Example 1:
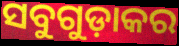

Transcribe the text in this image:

ସବୁଗୁଡ଼ାକର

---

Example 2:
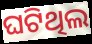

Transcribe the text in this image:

ଘଟିଥିଲ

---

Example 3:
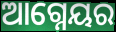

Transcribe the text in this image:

ଆଗ୍ନେୟର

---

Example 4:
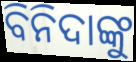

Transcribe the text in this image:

ବିନିଦାଙ୍କୁ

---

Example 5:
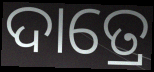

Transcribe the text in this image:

ଦାତ୍ରେ